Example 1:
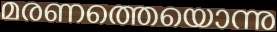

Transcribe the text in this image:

മരണത്തെയൊന്നു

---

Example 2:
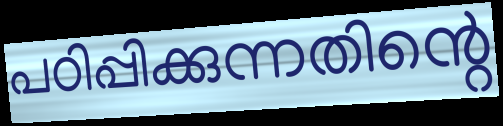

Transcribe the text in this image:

പഠിപ്പിക്കുന്നതിന്റെ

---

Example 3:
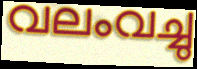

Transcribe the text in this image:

വലംവച്ചു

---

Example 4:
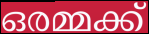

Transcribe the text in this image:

ഒരമ്മക്ക്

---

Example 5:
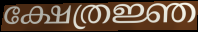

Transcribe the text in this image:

ക്ഷേത്രജ്ഞ